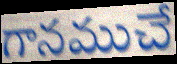
గానముచే